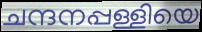
ചന്ദനപ്പള്ളിയെ